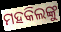
ମହକିଲଙ୍କୁ